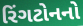
રિંગટોનનો